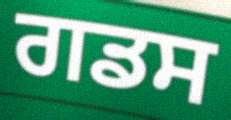
ਗਡਸ